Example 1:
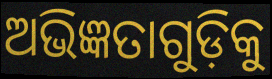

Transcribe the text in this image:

ଅଭିଜ୍ଞତାଗୁଡ଼ିକୁ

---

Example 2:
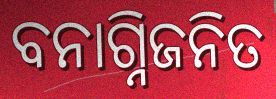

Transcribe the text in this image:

ବନାଗ୍ନିଜନିତ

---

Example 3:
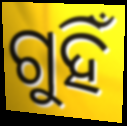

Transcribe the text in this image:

ଗୁହିଁ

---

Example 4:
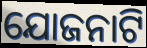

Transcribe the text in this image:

ଯୋଜନାଟି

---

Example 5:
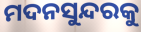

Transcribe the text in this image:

ମଦନସୁନ୍ଦରକୁ